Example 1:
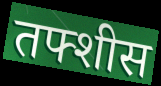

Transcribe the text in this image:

तफ्शीस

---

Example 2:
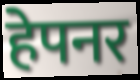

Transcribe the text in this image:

हेपनर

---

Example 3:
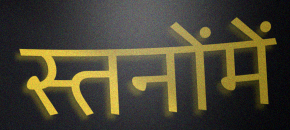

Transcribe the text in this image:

स्तनोंमें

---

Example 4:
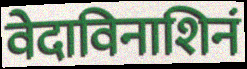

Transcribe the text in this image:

वेदाविनाशिनं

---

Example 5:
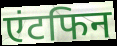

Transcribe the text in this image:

एंटफिन